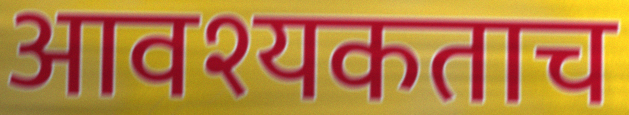
आवश्यकताच